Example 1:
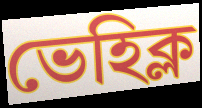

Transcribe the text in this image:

ভেহিক্ল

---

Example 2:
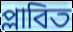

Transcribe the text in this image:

প্লাবিত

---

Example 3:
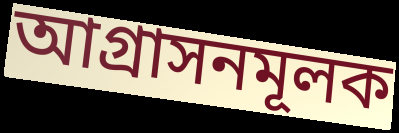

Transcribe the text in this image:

আগ্রাসনমূলক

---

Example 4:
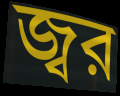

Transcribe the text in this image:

জ্বর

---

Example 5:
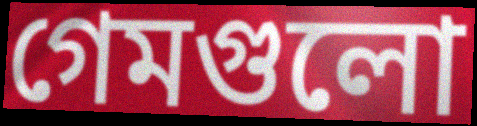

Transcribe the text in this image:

গেমগুলো